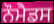
ਨੌਮੈਡਸ